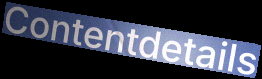
Contentdetails